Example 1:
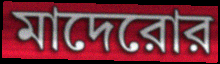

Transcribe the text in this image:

মাদেরোর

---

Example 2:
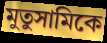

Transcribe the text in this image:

মুতুসামিকে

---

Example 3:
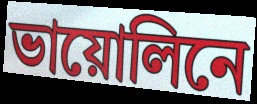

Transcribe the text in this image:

ভায়োলিনে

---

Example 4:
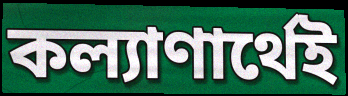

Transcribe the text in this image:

কল্যাণার্থেই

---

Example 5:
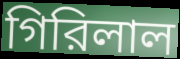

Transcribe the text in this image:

গিরিলাল